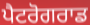
ਪੈਟਰੋਗਰਾਡ